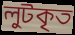
লুটকৃত